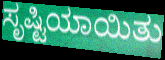
ಸೃಷ್ಟಿಯಾಯಿತು